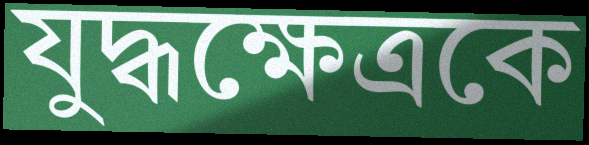
যুদ্ধক্ষেত্রকে